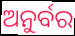
ଅନୁର୍ବର